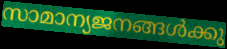
സാമാന്യജനങ്ങൾക്കു